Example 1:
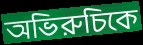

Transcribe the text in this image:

অভিরুচিকে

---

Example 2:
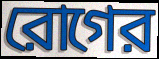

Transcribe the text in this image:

রোগের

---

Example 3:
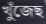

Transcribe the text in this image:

খুঁজেছ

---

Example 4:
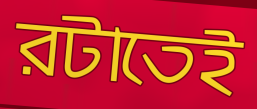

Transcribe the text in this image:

রটাতেই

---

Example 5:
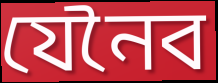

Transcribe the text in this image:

যেনৈব